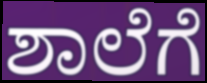
ಶಾಲೆಗೆ